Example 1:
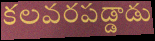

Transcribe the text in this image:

కలవరపడ్డాడు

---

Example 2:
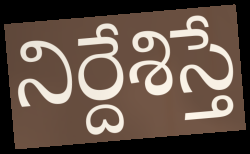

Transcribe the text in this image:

నిర్దేశిస్తే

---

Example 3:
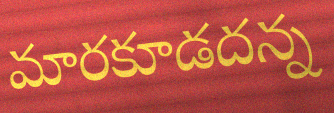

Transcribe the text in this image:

మారకూడదన్న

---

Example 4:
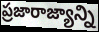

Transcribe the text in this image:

ప్రజారాజ్యాన్ని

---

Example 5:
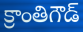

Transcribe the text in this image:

క్రాంతిగౌడ్